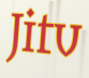
Jitu